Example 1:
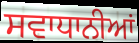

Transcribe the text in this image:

ਸਵਾਧਾਨੀਆਂ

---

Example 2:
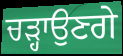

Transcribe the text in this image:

ਚੜ੍ਹਾਉਣਗੇ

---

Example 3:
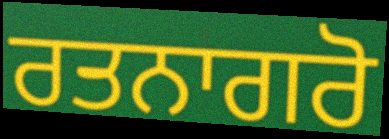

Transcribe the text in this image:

ਰਤਨਾਗਰੋ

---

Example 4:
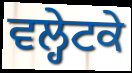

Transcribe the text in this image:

ਵਲ੍ਹੇਟਕੇ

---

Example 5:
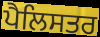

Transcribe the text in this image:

ਪੈਲਿਸਤਰ